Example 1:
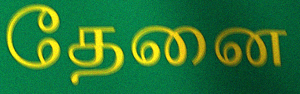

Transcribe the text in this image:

தேனை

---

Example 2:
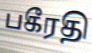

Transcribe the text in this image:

பகீரதி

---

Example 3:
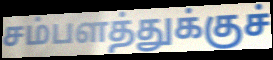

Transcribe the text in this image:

சம்பளத்துக்குச்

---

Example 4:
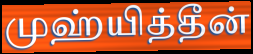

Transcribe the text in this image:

முஹ்யித்தீன்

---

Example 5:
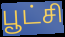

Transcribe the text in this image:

பூட்சி